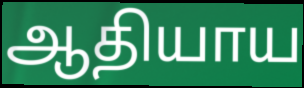
ஆதியாய